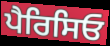
ਪੈਰਿਸਿਓ